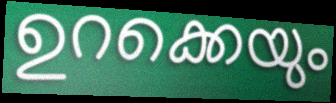
ഉറക്കെയും